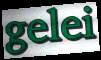
gelei